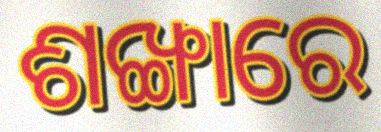
ଶଙ୍ଖାରେ